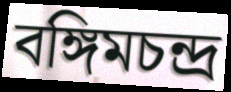
বঙ্গিমচন্দ্র